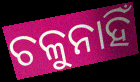
ଚଳୁନାହିଁ